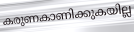
കരുണകാണിക്കുകയില്ല